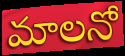
మాలనో